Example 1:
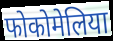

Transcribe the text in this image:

फोकोमेलिया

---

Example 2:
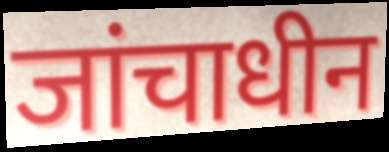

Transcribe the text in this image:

जांचाधीन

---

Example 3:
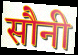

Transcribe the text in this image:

सौनी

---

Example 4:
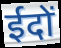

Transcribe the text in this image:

ईदों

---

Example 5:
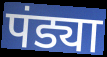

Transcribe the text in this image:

पंड्या